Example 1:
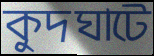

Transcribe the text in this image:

কুদঘাটে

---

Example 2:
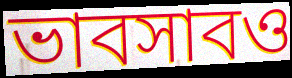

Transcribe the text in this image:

ভাবসাবও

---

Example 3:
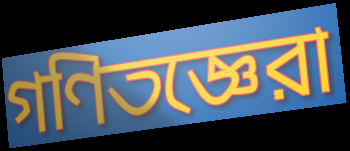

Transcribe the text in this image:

গণিতজ্ঞেরা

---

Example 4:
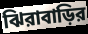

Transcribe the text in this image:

ঝিরাবাড়ির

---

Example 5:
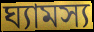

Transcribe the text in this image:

ঘ্যামস্য